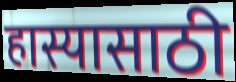
हास्यासाठी